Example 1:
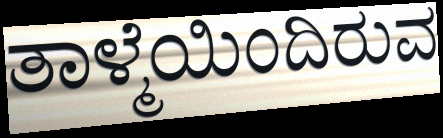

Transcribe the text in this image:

ತಾಳ್ಮೆಯಿಂದಿರುವ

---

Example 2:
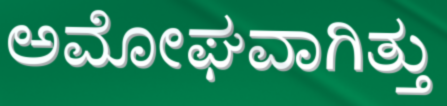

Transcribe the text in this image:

ಅಮೋಘವಾಗಿತ್ತು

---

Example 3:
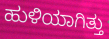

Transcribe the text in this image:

ಹುಳಿಯಾಗಿತ್ತು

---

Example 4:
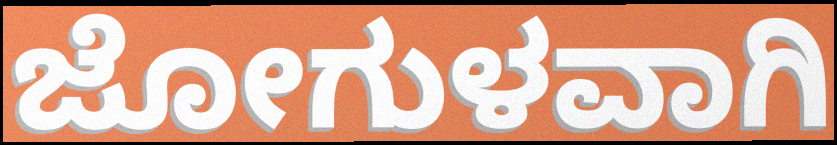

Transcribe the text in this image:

ಜೋಗುಳವಾಗಿ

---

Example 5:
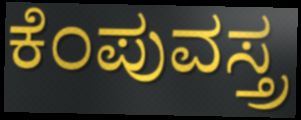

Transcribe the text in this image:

ಕೆಂಪುವಸ್ತ್ರ